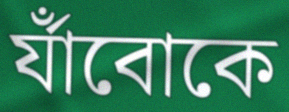
র্যাঁবোকে